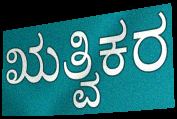
ಋತ್ವಿಕರ